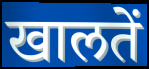
खालतें